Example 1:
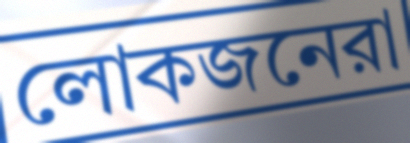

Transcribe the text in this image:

লোকজনেরা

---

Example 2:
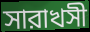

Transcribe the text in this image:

সারাখসী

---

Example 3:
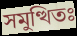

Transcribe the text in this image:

সমুত্থিতঃ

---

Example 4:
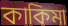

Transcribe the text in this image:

কাকিমা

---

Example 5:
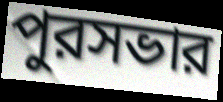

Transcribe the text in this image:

পুরসভার